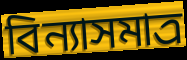
বিন্যাসমাত্র